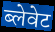
ब्लेवेट